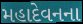
મહાદેવનના